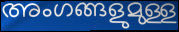
അംഗങ്ങളുമുള്ള